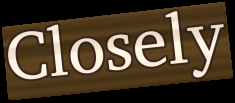
Closely